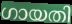
ഗായതി